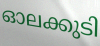
ഓലക്കുടി